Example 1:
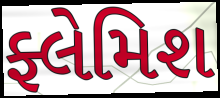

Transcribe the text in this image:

ફ્લેમિશ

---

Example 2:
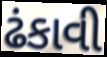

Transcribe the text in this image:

ઢંકાવી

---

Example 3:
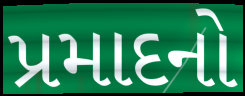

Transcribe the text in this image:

પ્રમાદનો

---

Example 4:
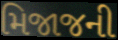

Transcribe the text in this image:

મિજાજની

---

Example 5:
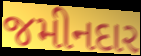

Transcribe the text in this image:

જમીનદાર